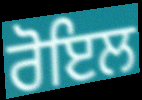
ਰੋਇਲ